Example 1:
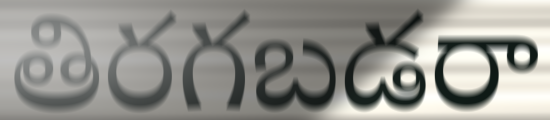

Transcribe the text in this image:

తిరగబడరా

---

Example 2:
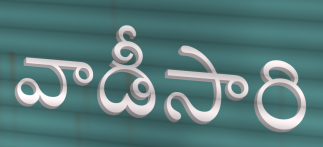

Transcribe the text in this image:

వాడీసారి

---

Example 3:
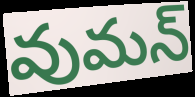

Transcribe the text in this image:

వుమన్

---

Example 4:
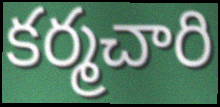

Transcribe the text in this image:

కర్మచారి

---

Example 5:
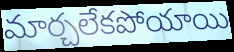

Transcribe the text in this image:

మార్చలేకపోయాయి